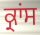
ਕ੍ਰਾਂਸ